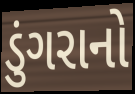
ડુંગરાનો